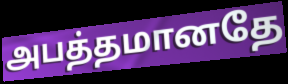
அபத்தமானதே